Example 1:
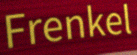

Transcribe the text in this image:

Frenkel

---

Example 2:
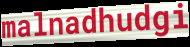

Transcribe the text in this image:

malnadhudgi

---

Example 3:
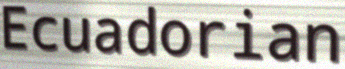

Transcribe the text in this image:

Ecuadorian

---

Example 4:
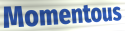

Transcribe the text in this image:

Momentous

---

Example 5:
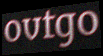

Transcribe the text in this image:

outgo